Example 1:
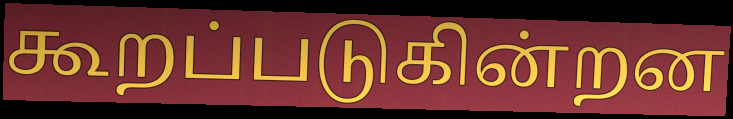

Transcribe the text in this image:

கூறப்படுகின்றன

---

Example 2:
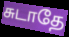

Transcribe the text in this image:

சுடாதே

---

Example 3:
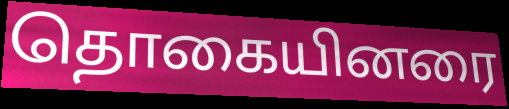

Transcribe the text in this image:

தொகையினரை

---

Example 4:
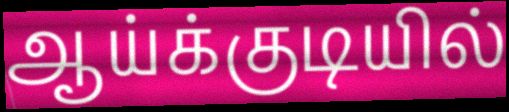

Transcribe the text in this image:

ஆய்க்குடியில்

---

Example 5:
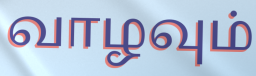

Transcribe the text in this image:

வாழவும்